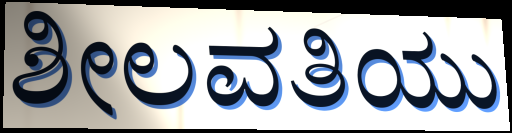
ಶೀಲವತಿಯು